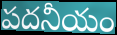
పదనీయం